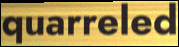
quarreled